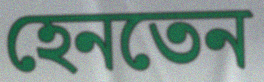
হেনতেন